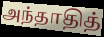
அந்தாதித்